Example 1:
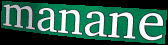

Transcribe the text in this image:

manane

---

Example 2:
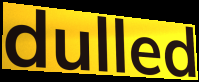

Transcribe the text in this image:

dulled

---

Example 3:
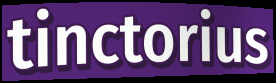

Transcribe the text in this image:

tinctorius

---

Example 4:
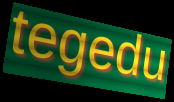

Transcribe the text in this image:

tegedu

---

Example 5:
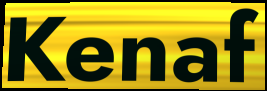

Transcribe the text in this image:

Kenaf